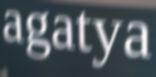
agatya